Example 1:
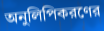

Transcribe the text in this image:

অনুলিপিকরণের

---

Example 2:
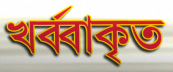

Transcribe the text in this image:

খর্ব্বাকৃত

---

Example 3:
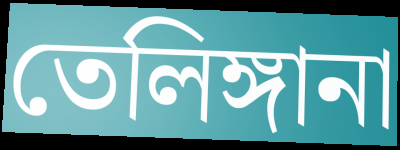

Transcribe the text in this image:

তেলিঙ্গানা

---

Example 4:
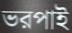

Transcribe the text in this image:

ভরপাই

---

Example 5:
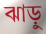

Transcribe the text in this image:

ঝাড়ু